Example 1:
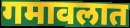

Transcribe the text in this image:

गमावलात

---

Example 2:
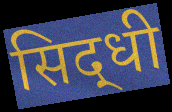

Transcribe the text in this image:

सिद्धी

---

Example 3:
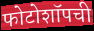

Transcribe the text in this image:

फोटोशॉपची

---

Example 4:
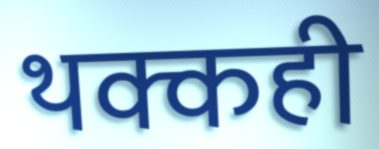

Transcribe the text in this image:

थक्कही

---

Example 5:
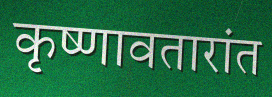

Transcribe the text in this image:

कृष्णावतारांत